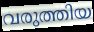
വരുത്തിയ